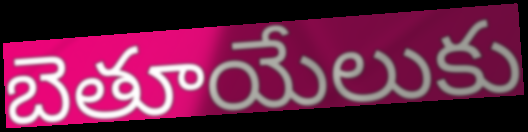
బెతూయేలుకు